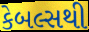
કેબલ્સથી